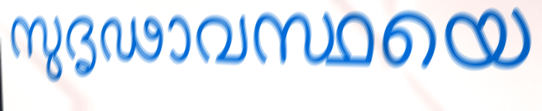
സുദൃഢാവസ്ഥയെ